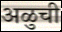
अळुची